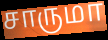
சாருமா